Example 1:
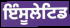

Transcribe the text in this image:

ਇੰਸੂਲੇਟਿਡ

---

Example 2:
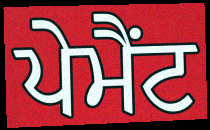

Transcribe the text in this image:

ਪੇਮੈਂਟ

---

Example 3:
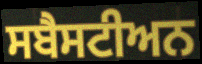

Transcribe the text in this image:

ਸਬੈਸਟੀਅਨ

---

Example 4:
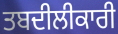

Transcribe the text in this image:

ਤਬਦੀਲੀਕਾਰੀ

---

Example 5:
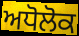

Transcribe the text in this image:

ਅਧੋਲੋਕ